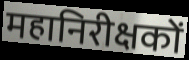
महानिरीक्षकों